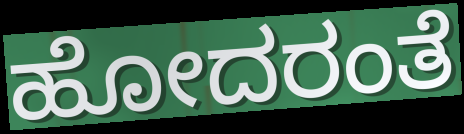
ಹೋದರಂತೆ